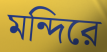
মন্দিরে